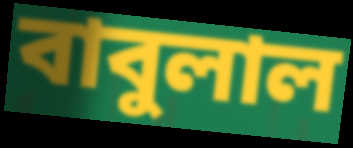
বাবুলাল